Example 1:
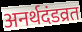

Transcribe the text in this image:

अनर्थदंडव्रत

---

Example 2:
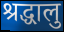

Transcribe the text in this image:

श्रद्धालु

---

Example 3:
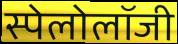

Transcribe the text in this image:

स्पेलोलॉजी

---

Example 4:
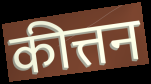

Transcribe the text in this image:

कीत्तन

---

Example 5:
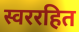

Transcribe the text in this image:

स्वररहित